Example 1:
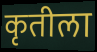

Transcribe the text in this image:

कृतीला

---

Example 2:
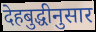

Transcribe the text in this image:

देहबुद्धीनुसार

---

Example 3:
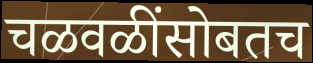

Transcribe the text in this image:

चळवळींसोबतच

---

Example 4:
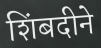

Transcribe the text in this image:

शिंबदीने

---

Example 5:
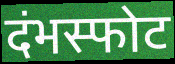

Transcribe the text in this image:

दंभस्फोट